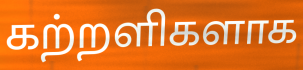
கற்றளிகளாக